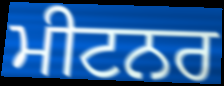
ਮੀਟਨਰ